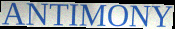
ANTIMONY